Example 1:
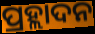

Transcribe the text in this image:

ପ୍ରହ୍ଲାଦନ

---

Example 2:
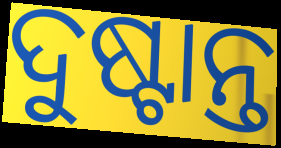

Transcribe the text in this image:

ଦୁଷ୍ଟାନ୍ତ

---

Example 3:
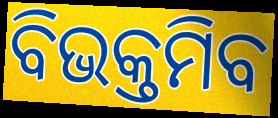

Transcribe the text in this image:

ବିଭକ୍ତମିବ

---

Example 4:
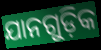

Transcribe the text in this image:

ଯାନଗୁଡ଼ିକ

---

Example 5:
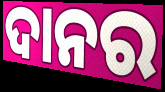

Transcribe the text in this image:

ଦାନର